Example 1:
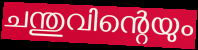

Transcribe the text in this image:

ചന്തുവിന്റെയും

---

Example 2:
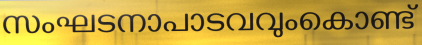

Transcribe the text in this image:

സംഘടനാപാടവവുംകൊണ്ട്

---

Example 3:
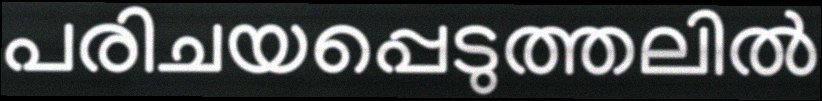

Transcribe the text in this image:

പരിചയപ്പെടുത്തലിൽ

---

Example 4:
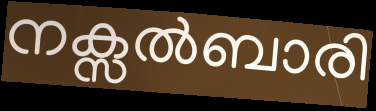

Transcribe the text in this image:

നക്സൽബാരി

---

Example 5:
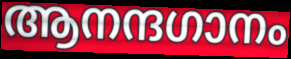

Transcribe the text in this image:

ആനന്ദഗാനം